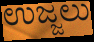
ಉಜ್ಜಲು